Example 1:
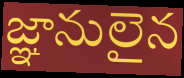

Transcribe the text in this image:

జ్ఞానులైన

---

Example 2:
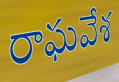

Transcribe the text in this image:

రాఘవేశ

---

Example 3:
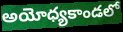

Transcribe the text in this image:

అయోధ్యకాండలో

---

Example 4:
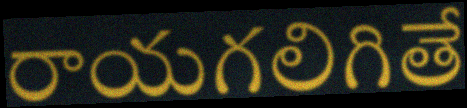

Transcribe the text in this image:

రాయగలిగితే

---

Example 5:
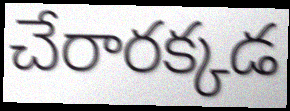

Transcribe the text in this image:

చేరారక్కడ